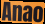
Anao